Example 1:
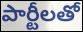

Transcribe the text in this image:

పార్టీలతో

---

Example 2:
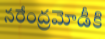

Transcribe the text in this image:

నరేంద్రమోడీకి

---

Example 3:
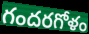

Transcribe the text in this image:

గందరగోళం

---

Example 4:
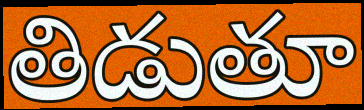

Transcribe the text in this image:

తిడుతూ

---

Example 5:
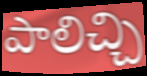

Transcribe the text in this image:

పాలిచ్చి